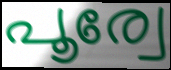
പൂര്വേ